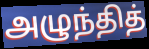
அழுந்தித்